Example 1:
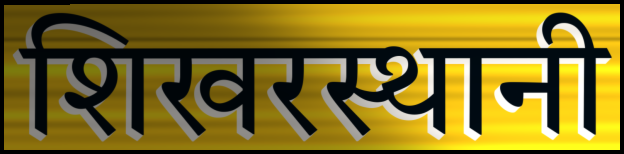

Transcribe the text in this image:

शिखरस्थानी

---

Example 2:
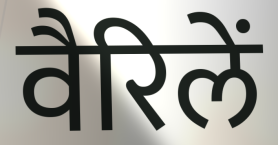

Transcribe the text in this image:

वैरिलें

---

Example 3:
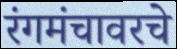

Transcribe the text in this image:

रंगमंचावरचे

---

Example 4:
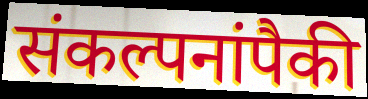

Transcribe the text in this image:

संकल्पनांपैकी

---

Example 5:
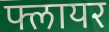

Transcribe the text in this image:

फ्लायर